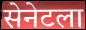
सेनेटला